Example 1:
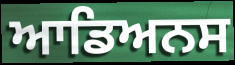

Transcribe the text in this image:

ਆਡਿਅਨਸ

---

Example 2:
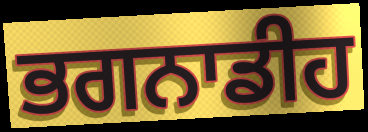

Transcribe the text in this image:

ਭਗਨਾਡੀਹ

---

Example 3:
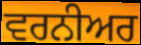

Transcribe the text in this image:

ਵਰਨੀਅਰ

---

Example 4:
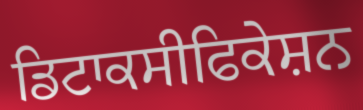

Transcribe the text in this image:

ਡਿਟਾਕਸੀਫਿਕੇਸ਼ਨ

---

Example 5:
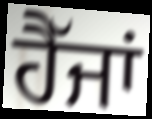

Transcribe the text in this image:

ਹੈੱਜਾਂ